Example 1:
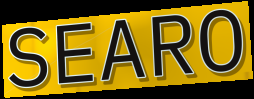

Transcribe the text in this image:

SEARO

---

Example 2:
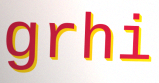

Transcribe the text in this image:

grhi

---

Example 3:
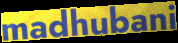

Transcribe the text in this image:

madhubani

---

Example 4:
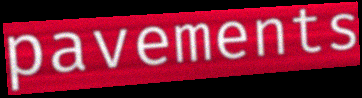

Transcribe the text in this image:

pavements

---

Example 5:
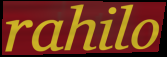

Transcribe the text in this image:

rahilo